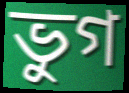
ভুগ